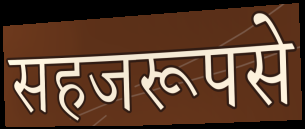
सहजरूपसे